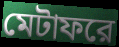
মেটাফরে